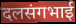
दलसंगभाई